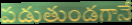
పడుతుండగానే